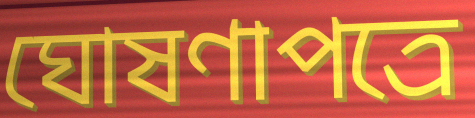
ঘোষণাপত্রে